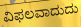
ವಿಫಲವಾದುದು